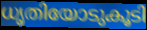
ധൃതിയോടുകൂടി